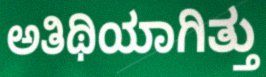
ಅತಿಥಿಯಾಗಿತ್ತು